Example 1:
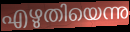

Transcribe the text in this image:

എഴുതിയെന്നു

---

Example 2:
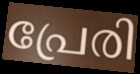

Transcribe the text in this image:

പ്രേരി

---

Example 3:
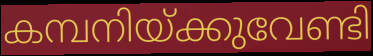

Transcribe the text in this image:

കമ്പനിയ്ക്കുവേണ്ടി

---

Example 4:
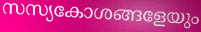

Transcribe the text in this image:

സസ്യകോശങ്ങളേയും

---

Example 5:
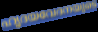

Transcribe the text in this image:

ഹൃദയവേദനയുടെ